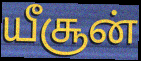
யீசூன்